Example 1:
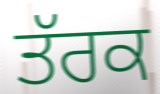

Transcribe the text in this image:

ਤੱਰਕ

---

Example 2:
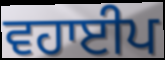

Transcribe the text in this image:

ਵਹਾਈਪ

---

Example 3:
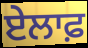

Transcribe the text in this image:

ਏਲਾਫ਼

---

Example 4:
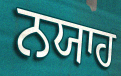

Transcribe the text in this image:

ਨਯਾਹ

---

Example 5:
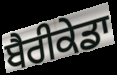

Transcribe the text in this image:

ਬੈਰੀਕੇਡਾ